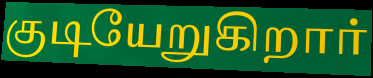
குடியேறுகிறார்